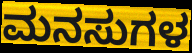
ಮನಸುಗಳ